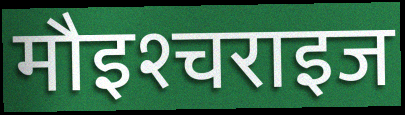
मौइश्चराइज